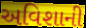
અવિશાની